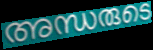
അന്ധരുടെ